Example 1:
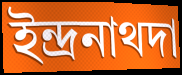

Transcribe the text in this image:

ইন্দ্রনাথদা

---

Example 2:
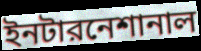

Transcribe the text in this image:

ইনটারনেশানাল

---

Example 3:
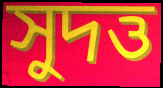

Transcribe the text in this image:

সুদত্ত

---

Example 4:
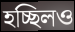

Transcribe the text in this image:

হচ্ছিলও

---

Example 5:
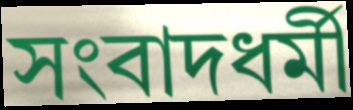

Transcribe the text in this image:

সংবাদধর্মী